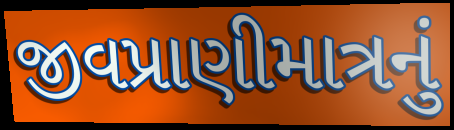
જીવપ્રાણીમાત્રનું